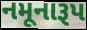
નમૂનારૂપ